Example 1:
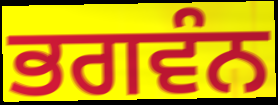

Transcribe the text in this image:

ਭਗਵੰਨ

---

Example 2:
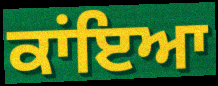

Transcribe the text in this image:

ਕਾਂਇਆ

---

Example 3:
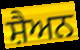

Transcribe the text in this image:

ਸ਼ੈਅਨ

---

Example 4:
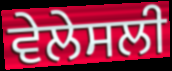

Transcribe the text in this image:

ਵੇਲੇਸਲੀ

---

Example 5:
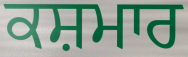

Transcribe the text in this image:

ਕਸ਼ਮਾਰ